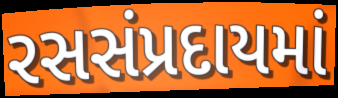
રસસંપ્રદાયમાં